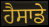
ਹੈਸਾਡੇ